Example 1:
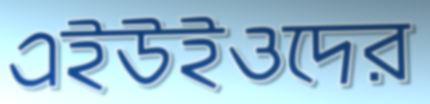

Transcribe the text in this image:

এইউইওদের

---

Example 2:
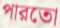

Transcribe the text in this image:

পারতো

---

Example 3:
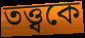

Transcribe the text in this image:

তত্ত্বকে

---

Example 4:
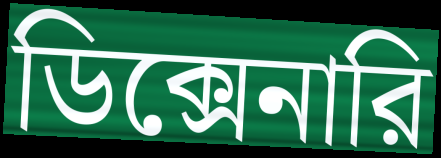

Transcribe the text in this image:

ডিক্সেনারি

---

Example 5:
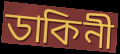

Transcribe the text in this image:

ডাকিনী